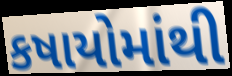
કષાયોમાંથી